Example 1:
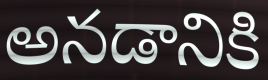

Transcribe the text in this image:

అనడానికి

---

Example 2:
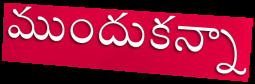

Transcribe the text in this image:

ముందుకన్నా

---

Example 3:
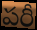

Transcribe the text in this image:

పరీ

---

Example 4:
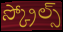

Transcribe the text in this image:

స్క్రోల్స్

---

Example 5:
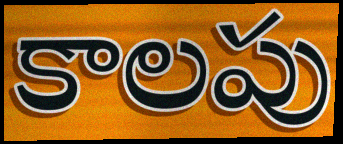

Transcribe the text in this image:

కాలపు